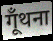
गूँथना